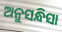
ଅନୁସନ୍ଧିସା